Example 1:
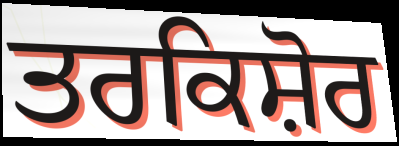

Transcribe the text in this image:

ਤਰਕਿਸ਼ੋਰ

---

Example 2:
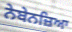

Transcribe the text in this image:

ਨੇਬੇਨਜ਼ਿਆ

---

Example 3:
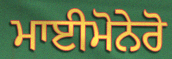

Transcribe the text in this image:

ਮਾਈਮੋਨੇਰੋ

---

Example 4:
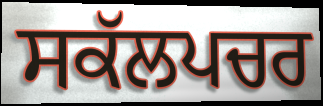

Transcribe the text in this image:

ਸਕੱਲਪਚਰ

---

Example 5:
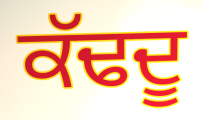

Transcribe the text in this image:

ਕੱਢਦੂ